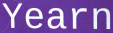
Yearn